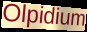
Olpidium